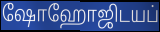
ஷோஹோஜிடயப்